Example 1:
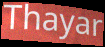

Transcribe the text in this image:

Thayar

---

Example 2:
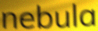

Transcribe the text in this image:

nebula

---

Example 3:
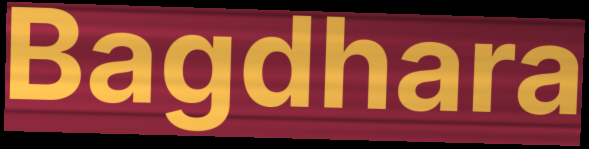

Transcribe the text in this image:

Bagdhara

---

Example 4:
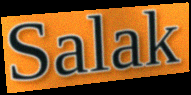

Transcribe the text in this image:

Salak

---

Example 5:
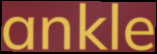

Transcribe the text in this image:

ankle